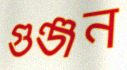
গুঞ্জন